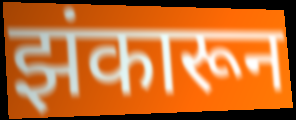
झंकारून